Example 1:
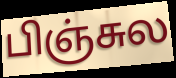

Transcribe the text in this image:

பிஞ்சுல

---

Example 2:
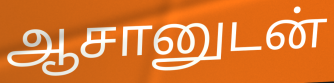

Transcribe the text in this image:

ஆசானுடன்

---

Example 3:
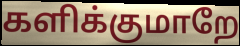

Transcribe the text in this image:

களிக்குமாறே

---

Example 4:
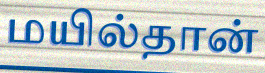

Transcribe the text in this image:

மயில்தான்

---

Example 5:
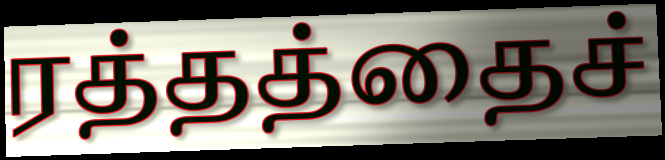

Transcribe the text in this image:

ரத்தத்தைச்